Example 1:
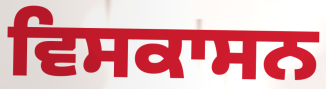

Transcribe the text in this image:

ਵਿਸਕਾਸਨ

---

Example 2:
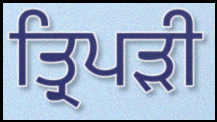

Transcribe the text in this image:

ਤ੍ਰਿਪਡ਼ੀ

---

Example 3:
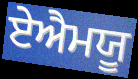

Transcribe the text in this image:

ਏਐਮਯੂ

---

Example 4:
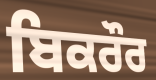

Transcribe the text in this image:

ਬਿਕਰੌਰ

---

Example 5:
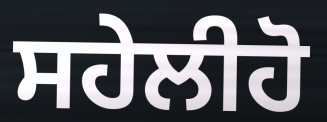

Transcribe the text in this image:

ਸਹੇਲੀਹੋ